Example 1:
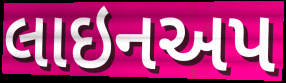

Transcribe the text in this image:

લાઇનઅપ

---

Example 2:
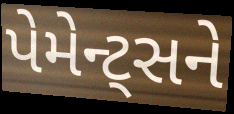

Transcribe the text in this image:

પેમેન્ટ્સને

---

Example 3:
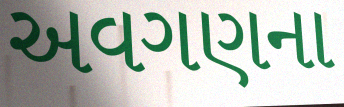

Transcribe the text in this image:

અવગણના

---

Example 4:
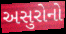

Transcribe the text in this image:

અસુરોનો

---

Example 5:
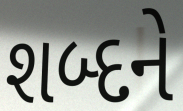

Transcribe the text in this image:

શબ્દને